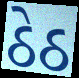
ઠેઠ